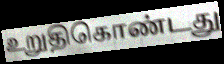
உறுதிகொண்டது